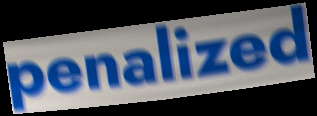
penalized